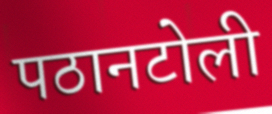
पठानटोली